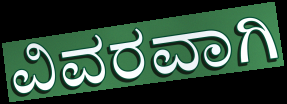
ವಿವರವಾಗಿ